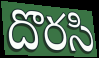
దొరసి